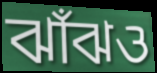
ঝাঁঝও